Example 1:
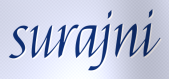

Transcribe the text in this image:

surajni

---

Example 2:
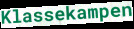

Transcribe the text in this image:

Klassekampen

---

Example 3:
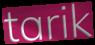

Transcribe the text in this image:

tarik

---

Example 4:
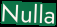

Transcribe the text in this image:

Nulla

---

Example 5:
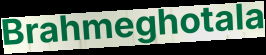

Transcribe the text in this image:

Brahmeghotala